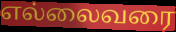
எல்லைவரை